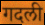
गदली